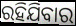
ରହିଯିବାର